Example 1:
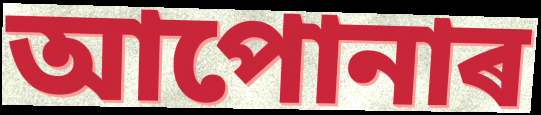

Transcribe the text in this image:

আপোনাৰ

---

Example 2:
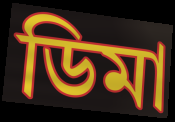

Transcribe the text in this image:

ডিমা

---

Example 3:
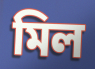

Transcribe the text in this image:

মিল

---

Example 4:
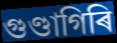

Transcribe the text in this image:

গুণ্ডাগিৰি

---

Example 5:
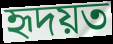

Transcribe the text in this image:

হৃদয়ত